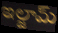
ఇల్జామ్